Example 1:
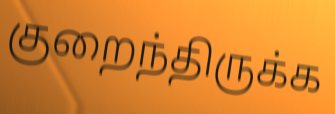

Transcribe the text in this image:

குறைந்திருக்க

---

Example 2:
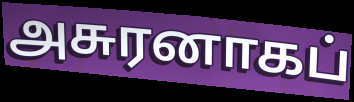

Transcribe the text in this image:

அசுரனாகப்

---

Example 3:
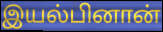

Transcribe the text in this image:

இயல்பினான்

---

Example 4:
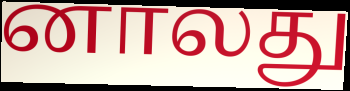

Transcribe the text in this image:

னாலது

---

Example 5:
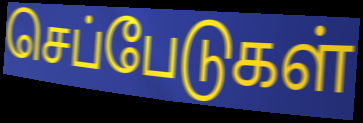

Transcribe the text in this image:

செப்பேடுகள்